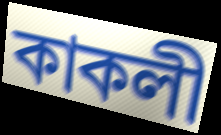
কাকলী